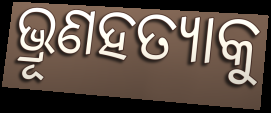
ଭ୍ରୂଣହତ୍ୟାକୁ